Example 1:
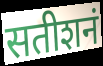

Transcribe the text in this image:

सतीशनं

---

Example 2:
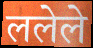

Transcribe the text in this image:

ललेले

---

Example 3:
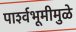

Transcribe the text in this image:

पार्श्‍वभूमीमुळे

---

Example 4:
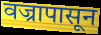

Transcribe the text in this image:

वज्रापासून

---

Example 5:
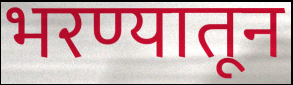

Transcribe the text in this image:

भरण्यातून